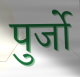
पुर्जो